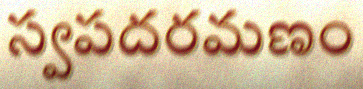
స్వపదరమణం